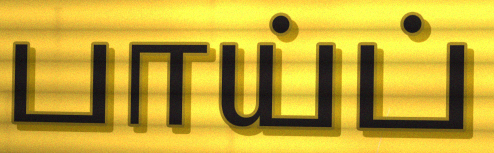
பாய்ப்